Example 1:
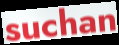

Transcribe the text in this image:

suchan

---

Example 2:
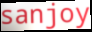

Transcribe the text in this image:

sanjoy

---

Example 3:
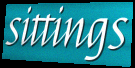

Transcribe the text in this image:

sittings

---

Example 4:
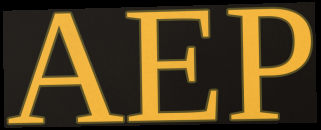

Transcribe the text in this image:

AEP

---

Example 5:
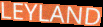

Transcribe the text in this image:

LEYLAND